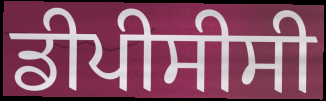
ਡੀਪੀਸੀਸੀ